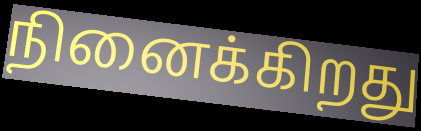
நினைக்கிறது